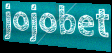
jojobet